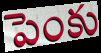
పెంకు